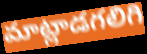
మాట్లాడగలిగి